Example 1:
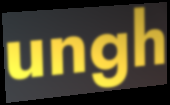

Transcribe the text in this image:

ungh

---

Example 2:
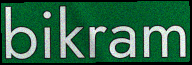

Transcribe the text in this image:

bikram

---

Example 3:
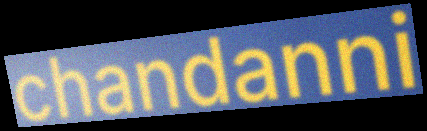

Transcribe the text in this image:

chandanni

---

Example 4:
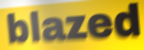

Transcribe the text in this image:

blazed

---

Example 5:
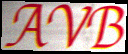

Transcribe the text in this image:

AVB